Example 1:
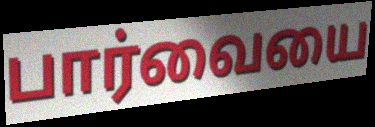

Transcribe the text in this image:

பார்வையை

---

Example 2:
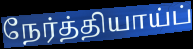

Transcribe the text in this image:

நேர்த்தியாய்ப்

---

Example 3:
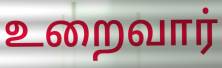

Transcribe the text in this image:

உறைவார்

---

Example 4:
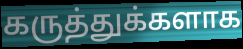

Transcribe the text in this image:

கருத்துக்களாக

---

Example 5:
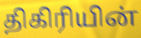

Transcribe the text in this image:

திகிரியின்